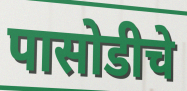
पासोडीचे